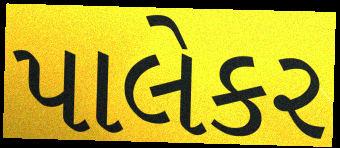
પાલેકર